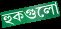
হুকগুলো